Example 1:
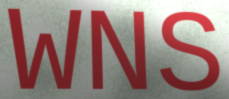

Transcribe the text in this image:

WNS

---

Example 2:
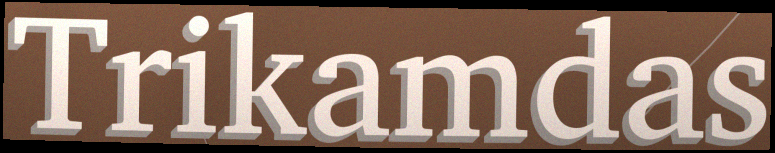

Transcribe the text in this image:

Trikamdas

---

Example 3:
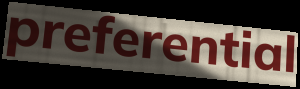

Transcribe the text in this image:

preferential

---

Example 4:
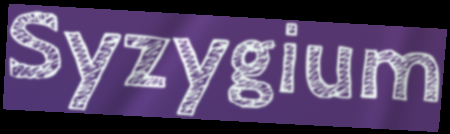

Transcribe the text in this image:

Syzygium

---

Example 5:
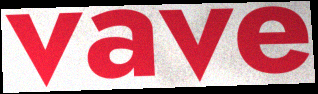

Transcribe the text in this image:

vave